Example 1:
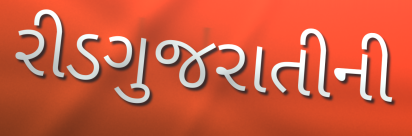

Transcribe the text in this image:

રીડગુજરાતીની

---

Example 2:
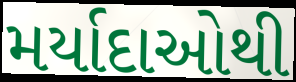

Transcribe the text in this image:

મર્યાદાઓથી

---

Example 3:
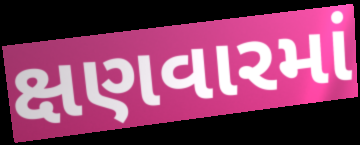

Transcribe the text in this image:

ક્ષણવારમાં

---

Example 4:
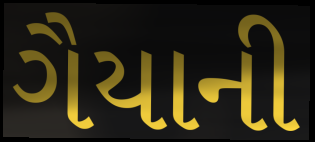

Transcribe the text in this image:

ગૈયાની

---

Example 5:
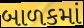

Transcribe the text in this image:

બાળકમાં